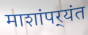
माशांपर्यंत